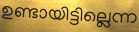
ഉണ്ടായിട്ടില്ലെന്ന